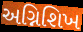
અગ્નિશિખ